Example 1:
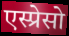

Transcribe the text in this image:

एस्प्रेसो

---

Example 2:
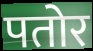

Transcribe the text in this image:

पतोर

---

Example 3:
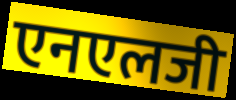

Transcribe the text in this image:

एनएलजी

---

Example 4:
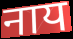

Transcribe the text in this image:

नाय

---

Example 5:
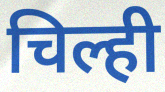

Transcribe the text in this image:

चिल्ही